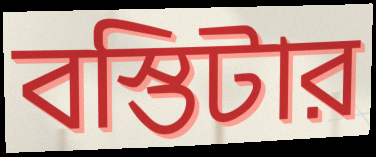
বস্তিটার